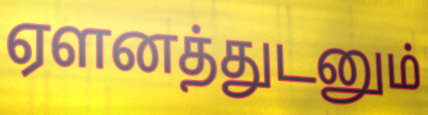
ஏளனத்துடனும்